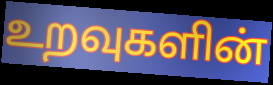
உறவுகளின்